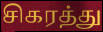
சிகரத்து